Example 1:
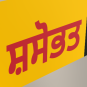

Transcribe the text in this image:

ਸ਼ਸੋਭਤ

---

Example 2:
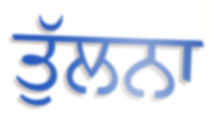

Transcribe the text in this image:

ਤੁੱਲਨਾ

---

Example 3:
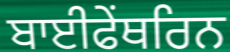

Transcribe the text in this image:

ਬਾਈਫੇਂਥਰਿਨ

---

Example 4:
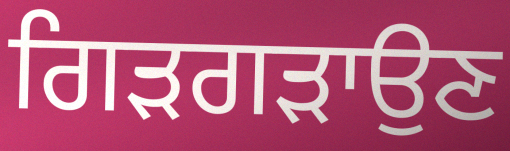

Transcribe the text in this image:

ਗਿੜਗੜਾਉਣ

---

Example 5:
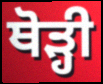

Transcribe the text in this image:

ਥੋਡ਼੍ਹੀ